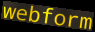
webform